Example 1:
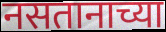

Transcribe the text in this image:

नसतानाच्या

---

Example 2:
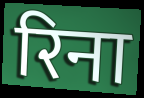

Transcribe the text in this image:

रिना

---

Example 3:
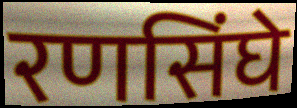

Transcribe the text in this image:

रणसिंघे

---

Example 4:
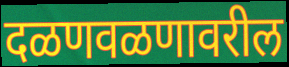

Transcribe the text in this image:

दळणवळणावरील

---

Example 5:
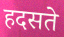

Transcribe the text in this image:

हदसते